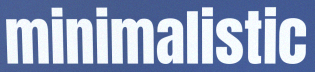
minimalistic